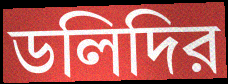
ডলিদির